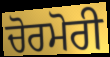
ਚੋਰਮੋਰੀ